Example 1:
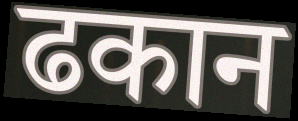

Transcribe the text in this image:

ढकान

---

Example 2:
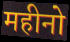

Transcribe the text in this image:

महीनो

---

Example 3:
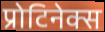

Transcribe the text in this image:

प्रोटिनेक्स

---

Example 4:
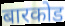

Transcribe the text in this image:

बारकोड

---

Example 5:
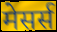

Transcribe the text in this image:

मेसर्स